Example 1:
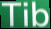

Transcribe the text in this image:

Tib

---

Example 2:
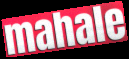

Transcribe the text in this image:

mahale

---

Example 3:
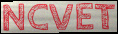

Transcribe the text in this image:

NCVET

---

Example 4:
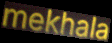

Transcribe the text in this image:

mekhala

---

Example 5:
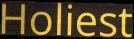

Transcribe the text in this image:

Holiest